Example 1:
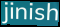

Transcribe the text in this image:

jinish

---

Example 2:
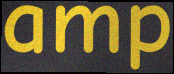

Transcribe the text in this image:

amp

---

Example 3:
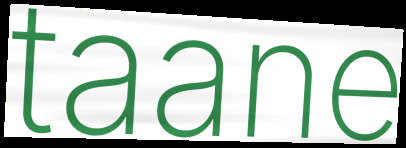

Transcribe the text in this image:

taane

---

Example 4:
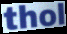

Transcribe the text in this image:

thol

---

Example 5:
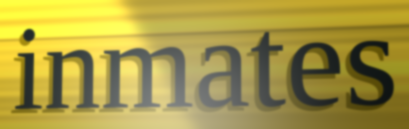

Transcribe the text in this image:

inmates